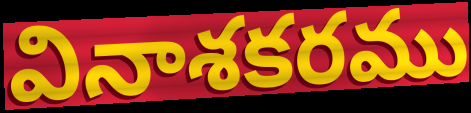
వినాశకరము